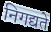
निगद्यते